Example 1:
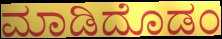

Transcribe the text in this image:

ಮಾಡಿದೊಡಂ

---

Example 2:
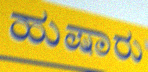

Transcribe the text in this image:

ಹುಷಾರು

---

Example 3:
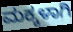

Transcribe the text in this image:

ಮಕ್ಕಳಾಗಿ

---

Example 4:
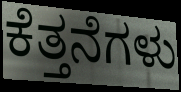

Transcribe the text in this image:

ಕೆತ್ತನೆಗಳು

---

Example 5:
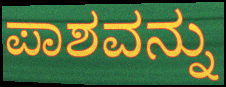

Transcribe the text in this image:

ಪಾಶವನ್ನು